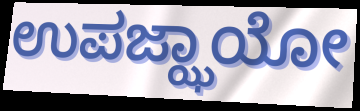
ಉಪಜ್ಝಾಯೋ